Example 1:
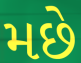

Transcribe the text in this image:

મછે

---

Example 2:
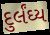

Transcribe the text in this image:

દુર્લંઘ્ય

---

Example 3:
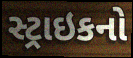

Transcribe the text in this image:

સ્ટ્રાઇકનો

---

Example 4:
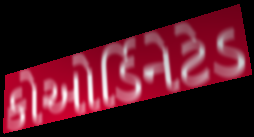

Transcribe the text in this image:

કોઓર્ડિનેટેડ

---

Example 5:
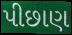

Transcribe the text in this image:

પીછાણ